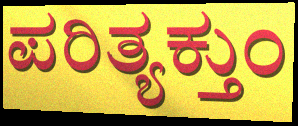
ಪರಿತ್ಯಕ್ತುಂ